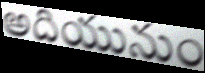
అదియునుం